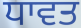
ਧਾਵਤ